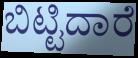
ಬಿಟ್ಟಿದಾರೆ